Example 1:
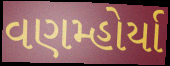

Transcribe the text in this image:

વણમ્હોર્યા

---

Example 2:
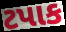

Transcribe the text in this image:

ટપાક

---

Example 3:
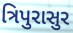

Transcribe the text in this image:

ત્રિપુરાસુર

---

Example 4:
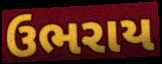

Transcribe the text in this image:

ઉભરાય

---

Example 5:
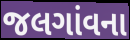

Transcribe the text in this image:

જલગાંવના